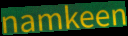
namkeen